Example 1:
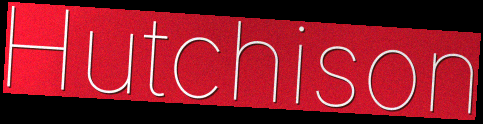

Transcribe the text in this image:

Hutchison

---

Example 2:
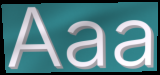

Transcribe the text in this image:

Aaa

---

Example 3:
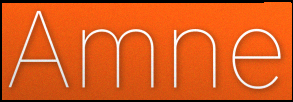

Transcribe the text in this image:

Amne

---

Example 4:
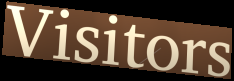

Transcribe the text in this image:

Visitors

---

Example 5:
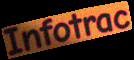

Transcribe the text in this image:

Infotrac